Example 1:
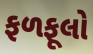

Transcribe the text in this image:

ફળફૂલો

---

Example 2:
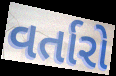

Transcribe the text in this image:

વર્તારો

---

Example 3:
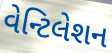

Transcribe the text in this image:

વેન્ટિલેશન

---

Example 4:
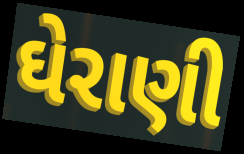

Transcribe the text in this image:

ઘેરાણી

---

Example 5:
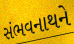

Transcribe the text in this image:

સંભવનાથને